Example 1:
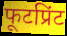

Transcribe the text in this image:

फूटप्रिंट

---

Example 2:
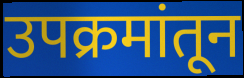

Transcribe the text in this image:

उपक्रमांतून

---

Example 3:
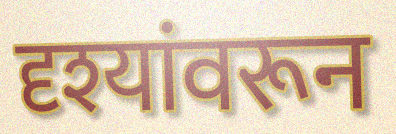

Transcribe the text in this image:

दृश्यांवरून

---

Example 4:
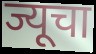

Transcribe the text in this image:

ज्यूचा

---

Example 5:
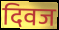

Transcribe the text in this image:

दिवज